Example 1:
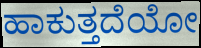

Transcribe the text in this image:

ಹಾಕುತ್ತದೆಯೋ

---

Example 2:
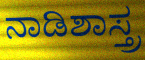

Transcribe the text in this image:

ನಾಡಿಶಾಸ್ತ್ರ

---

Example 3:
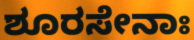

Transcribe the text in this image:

ಶೂರಸೇನಾಃ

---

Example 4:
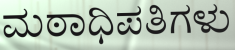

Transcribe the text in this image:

ಮಠಾಧಿಪತಿಗಳು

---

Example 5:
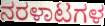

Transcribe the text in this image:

ನರಳಾಟಗಳ